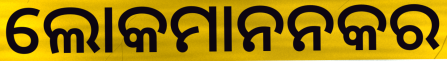
ଲୋକମାନନକର